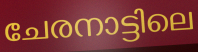
ചേരനാട്ടിലെ